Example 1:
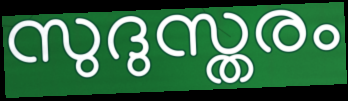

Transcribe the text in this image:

സുദുസ്തരം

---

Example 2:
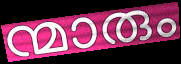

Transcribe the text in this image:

ന്മാരും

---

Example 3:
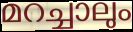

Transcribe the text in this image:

മറച്ചാലും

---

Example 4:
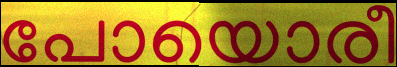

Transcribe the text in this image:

പോയൊരീ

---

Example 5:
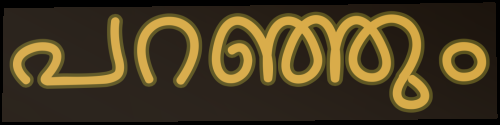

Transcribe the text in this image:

പറഞ്ഞും